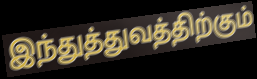
இந்துத்துவத்திற்கும்